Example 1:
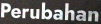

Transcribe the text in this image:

Perubahan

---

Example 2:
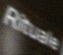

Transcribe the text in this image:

Rituale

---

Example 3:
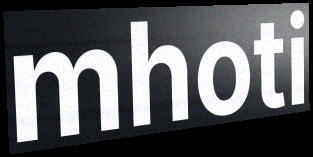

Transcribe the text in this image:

mhoti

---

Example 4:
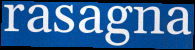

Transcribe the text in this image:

rasagna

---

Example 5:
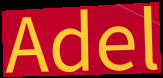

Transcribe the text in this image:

Adel